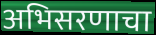
अभिसरणाचा